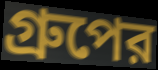
গ্রুপের